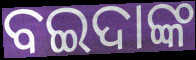
ବଇଦାଙ୍କ